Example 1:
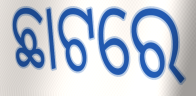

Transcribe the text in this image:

ଛାଟରେ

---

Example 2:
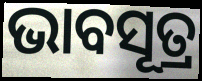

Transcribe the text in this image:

ଭାବସୂତ୍ର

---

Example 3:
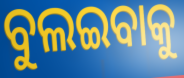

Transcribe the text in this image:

ବୁଲଇବାକୁ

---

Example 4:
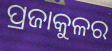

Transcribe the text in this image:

ପ୍ରଜାକୁଳର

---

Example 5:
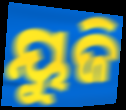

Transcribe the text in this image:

ୟୁଜି